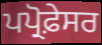
ਪਪ੍ਰੋਫ਼ੇਸਰ